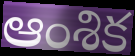
ఆంశిక